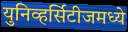
युनिव्हर्सिटीजमध्ये